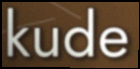
kude